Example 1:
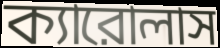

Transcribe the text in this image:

ক্যারোলাস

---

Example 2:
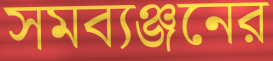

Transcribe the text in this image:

সমব্যঞ্জনের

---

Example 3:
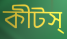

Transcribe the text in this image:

কীটস্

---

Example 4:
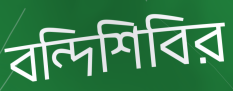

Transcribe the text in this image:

বন্দিশিবির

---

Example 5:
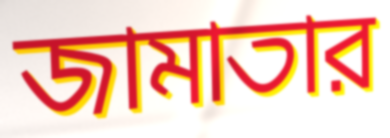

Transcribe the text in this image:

জামাতার